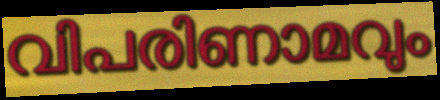
വിപരിണാമവും